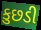
કુછડી